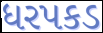
ધરપકડ